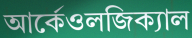
আর্কেওলজিক্যাল